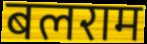
बलराम